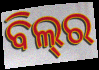
ବିଲ୍‌ର